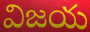
విజయ